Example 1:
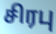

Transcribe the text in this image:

சிரபு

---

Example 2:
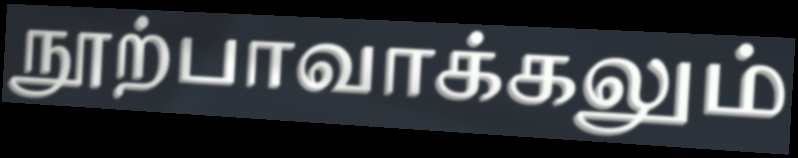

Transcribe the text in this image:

நூற்பாவாக்கலும்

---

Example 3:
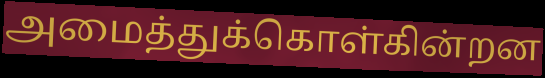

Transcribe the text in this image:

அமைத்துக்கொள்கின்றன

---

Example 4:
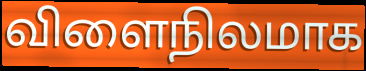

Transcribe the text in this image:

விளைநிலமாக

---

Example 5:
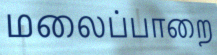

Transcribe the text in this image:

மலைப்பாறை